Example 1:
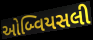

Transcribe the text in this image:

ઓબ્વિયસલી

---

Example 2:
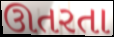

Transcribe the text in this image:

ઊતરતા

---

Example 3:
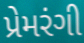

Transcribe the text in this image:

પ્રેમરંગી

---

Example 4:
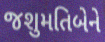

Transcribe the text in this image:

જશુમતિબેને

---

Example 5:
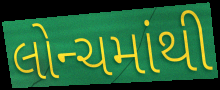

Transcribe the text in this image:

લોન્ચમાંથી